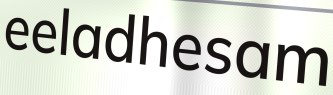
eeladhesam